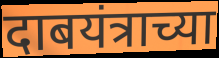
दाबयंत्राच्या